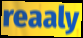
reaaly